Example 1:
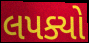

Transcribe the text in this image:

લપક્યો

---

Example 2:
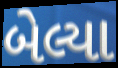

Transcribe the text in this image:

બેલ્યા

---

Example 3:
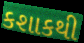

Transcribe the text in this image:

કશાકથી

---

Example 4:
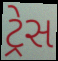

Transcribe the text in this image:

ટ્રેસ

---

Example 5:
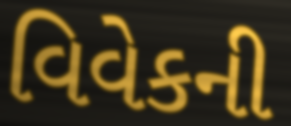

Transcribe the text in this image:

વિવેકની